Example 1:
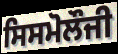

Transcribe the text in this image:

ਸਿਸਮੋਲੌਜੀ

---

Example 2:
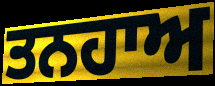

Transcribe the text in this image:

ਤਨਹਾਅ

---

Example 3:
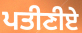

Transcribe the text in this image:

ਪਤੀਣੀਏ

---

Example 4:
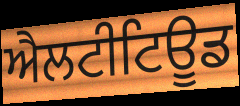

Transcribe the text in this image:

ਐਲਟੀਟਿਊਡ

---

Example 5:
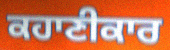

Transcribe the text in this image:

ਕਹਾਣੀਕਾਰ